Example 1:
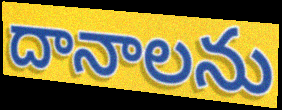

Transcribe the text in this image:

దానాలను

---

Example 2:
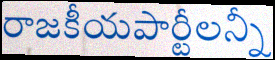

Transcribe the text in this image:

రాజకీయపార్టీలన్నీ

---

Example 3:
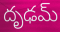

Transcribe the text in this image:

దృఢమ్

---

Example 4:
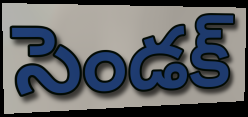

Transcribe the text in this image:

సెండక్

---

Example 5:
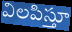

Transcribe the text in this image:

విలపిస్తూ